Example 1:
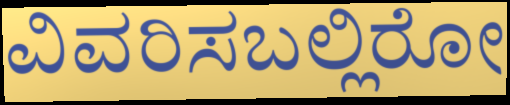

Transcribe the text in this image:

ವಿವರಿಸಬಲ್ಲಿರೋ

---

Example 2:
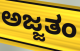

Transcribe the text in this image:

ಅಜ್ಜತಂ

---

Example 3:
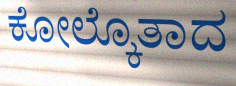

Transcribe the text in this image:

ಕೋಲ್ಕೊತಾದ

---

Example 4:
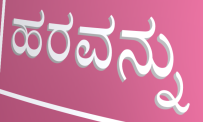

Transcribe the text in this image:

ಹರವನ್ನು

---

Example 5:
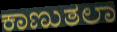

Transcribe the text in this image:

ಕಾಣುತಲಾ